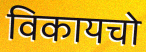
विकायचो